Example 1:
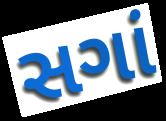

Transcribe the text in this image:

સગાં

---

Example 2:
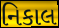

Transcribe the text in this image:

નિકાલ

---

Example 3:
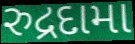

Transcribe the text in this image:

રુદ્રદામા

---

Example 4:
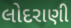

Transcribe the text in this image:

લોદરાણી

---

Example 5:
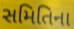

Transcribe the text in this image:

સમિતિના